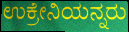
ಉಕ್ರೇನಿಯನ್ನರು